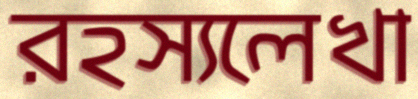
রহস্যলেখা